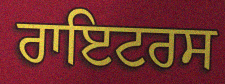
ਰਾਇਟਰਸ